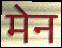
मेन